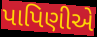
પાપિણીએ